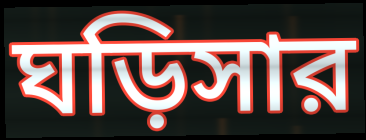
ঘড়িসার